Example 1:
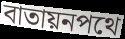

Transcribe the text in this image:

বাতায়নপথে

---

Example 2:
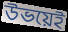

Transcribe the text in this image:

উভয়েই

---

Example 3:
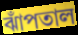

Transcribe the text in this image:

ঝাঁপতাল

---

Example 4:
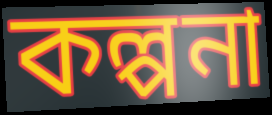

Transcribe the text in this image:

কল্পনা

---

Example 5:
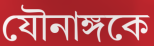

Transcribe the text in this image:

যৌনাঙ্গকে